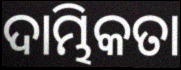
ଦାମ୍ଭିକତା